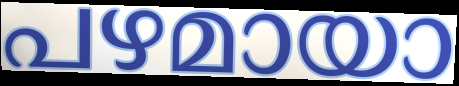
പഴമായാ